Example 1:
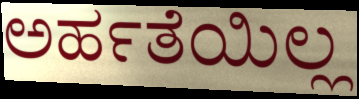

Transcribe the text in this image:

ಅರ್ಹತೆಯಿಲ್ಲ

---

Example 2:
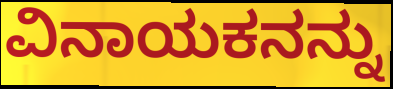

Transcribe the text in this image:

ವಿನಾಯಕನನ್ನು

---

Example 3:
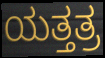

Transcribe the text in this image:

ಯತ್ತತ್ರ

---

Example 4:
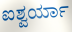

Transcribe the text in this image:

ಐಶ್ವರ್ಯಾ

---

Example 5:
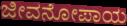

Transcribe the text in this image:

ಜೀವನೋಪಾಯ